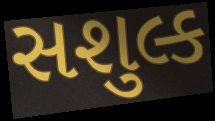
સશુલ્ક